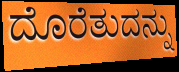
ದೊರೆತುದನ್ನು